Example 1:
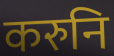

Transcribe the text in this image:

करुनि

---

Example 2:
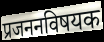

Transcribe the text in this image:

प्रजननविषयक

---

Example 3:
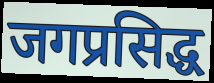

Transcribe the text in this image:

जगप्रसिद्ध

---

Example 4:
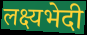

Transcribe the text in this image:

लक्ष्यभेदी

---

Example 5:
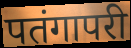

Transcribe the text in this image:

पतंगापरी